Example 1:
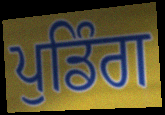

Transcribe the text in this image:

ਪੁਡਿੰਗ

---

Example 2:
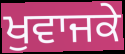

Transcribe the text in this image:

ਖੁਵਾਜਕੇ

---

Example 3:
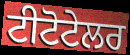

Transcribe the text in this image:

ਟੀਟੋਟੇਲਰ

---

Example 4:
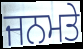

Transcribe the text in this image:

ਜਨਮਤੇ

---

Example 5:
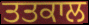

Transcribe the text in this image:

ਤਤਕਾਲ